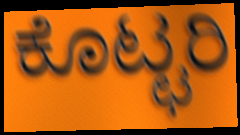
ಕೊಟ್ಟರಿ